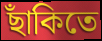
ছাঁকিতে